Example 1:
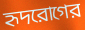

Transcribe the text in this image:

হৃদরোগের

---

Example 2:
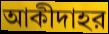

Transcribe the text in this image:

আকীদাহর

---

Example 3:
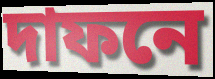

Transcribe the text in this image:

দাফনে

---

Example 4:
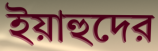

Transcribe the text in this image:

ইয়াহুদের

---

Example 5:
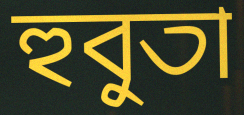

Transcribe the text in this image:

হুবুতা